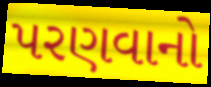
પરણવાનો